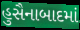
હુસૈનાબાદમાં